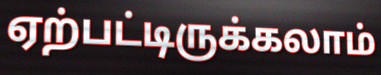
ஏற்பட்டிருக்கலாம்